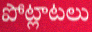
పోట్లాటలు